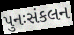
પુનઃસંકલન